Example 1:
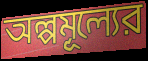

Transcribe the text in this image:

অল্পমূল্যের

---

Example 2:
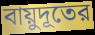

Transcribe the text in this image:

বায়ুদূতের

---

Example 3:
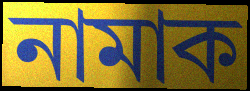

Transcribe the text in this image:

নামাক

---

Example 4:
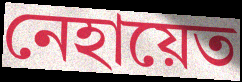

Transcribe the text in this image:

নেহায়েত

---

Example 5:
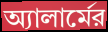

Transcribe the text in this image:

অ্যালার্মের